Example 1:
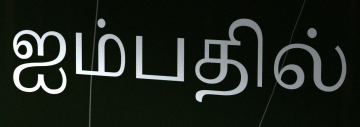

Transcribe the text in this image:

ஐம்பதில்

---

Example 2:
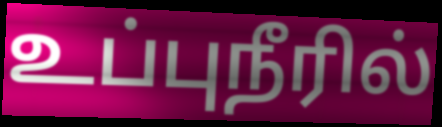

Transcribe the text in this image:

உப்புநீரில்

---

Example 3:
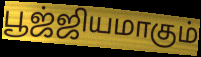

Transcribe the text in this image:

பூஜ்ஜியமாகும்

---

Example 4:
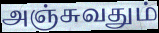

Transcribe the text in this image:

அஞ்சுவதும்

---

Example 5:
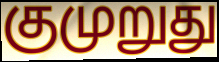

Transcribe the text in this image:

குமுறுது